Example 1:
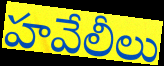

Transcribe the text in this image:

హవేలీలు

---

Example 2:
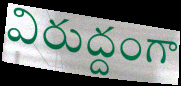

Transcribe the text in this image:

విరుద్దంగా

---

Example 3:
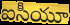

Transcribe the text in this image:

ఐసీయూ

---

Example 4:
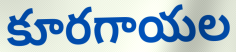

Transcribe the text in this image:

కూరగాయల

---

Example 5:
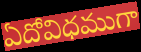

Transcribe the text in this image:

ఏదోవిధముగా